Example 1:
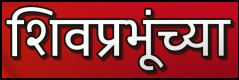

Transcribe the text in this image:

शिवप्रभूंच्या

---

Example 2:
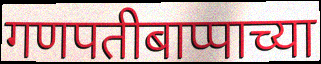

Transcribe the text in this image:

गणपतीबाप्पाच्या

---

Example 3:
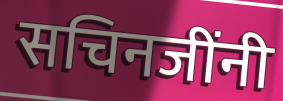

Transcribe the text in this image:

सचिनजींनी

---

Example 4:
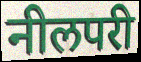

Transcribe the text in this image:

नीलपरी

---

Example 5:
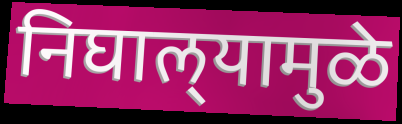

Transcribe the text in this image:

निघाल्यामुळे